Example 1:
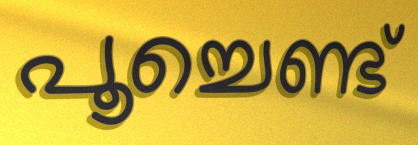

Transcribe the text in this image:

പൂച്ചെണ്ട്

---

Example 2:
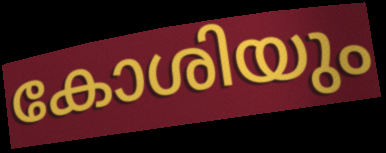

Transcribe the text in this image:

കോശിയും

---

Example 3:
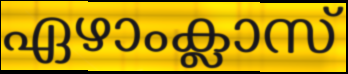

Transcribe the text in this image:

ഏഴാംക്ലാസ്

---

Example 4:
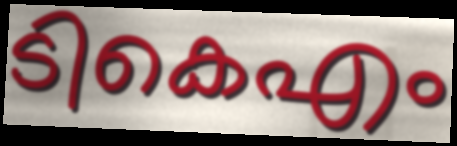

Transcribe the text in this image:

ടികെഎം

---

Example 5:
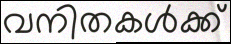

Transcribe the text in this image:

വനിതകൾക്ക്